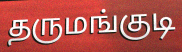
தருமங்குடி